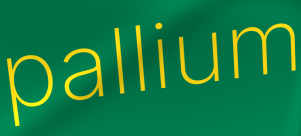
pallium